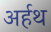
अर्हथ